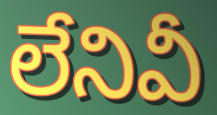
లేనివీ